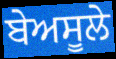
ਬੇਅਸੂਲੇ